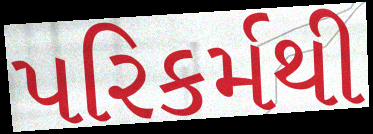
પરિકર્મથી